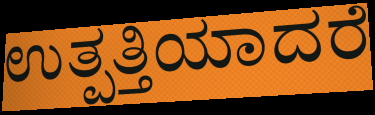
ಉತ್ಪತ್ತಿಯಾದರೆ